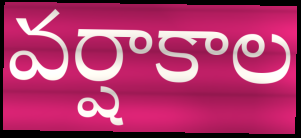
వర్షాకాల